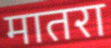
मातरा